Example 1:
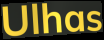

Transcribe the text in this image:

Ulhas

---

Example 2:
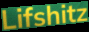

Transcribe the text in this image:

Lifshitz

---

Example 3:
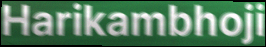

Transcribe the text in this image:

Harikambhoji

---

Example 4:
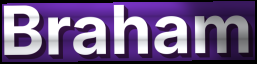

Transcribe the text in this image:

Braham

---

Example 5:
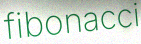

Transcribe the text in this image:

fibonacci